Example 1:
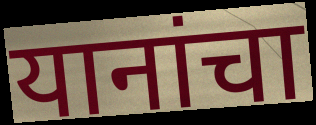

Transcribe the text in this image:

यानांचा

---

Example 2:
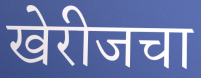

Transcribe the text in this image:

खेरीजचा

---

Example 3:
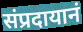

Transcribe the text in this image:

संप्रदायानं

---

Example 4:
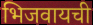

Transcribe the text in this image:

भिजवायची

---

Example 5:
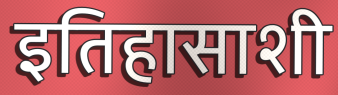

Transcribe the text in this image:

इतिहासाशी